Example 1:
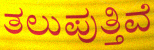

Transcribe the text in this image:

ತಲುಪುತ್ತಿವೆ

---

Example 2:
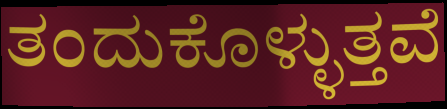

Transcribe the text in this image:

ತಂದುಕೊಳ್ಳುತ್ತವೆ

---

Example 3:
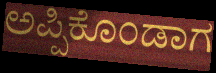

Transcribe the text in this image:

ಅಪ್ಪಿಕೊಂಡಾಗ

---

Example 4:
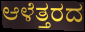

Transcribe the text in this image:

ಆಳೆತ್ತರದ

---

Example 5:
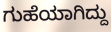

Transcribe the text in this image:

ಗುಹೆಯಾಗಿದ್ದು